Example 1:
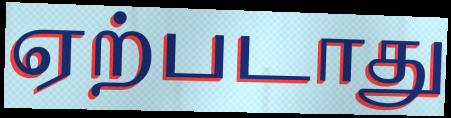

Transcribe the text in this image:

ஏற்படாது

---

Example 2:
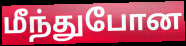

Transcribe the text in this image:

மீந்துபோன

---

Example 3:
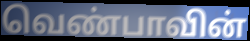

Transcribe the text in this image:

வெண்பாவின்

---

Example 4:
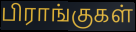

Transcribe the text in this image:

பிராங்குகள்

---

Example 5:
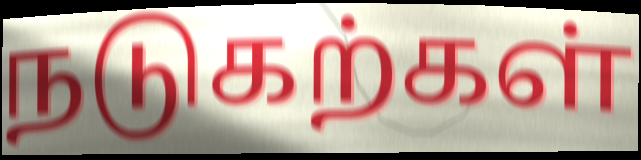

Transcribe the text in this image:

நடுகற்கள்